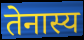
तेनास्य